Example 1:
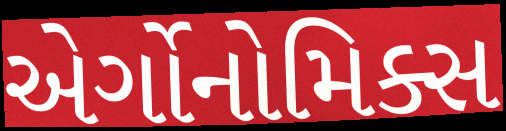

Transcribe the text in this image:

એર્ગોનોમિક્સ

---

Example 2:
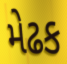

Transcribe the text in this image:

મેઢક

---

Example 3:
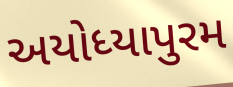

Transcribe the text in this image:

અયોધ્યાપુરમ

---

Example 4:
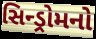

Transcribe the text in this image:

સિન્ડ્રોમનો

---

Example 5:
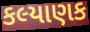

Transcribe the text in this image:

કલ્યાણક